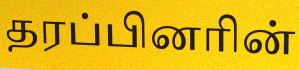
தரப்பினரின்